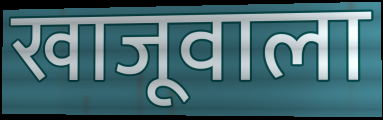
खाजूवाला